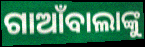
ଗାଆଁବାଲାଙ୍କୁ